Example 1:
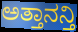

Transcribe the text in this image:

ಅತ್ತಾನನ್ತಿ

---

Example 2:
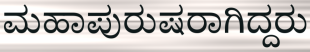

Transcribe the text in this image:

ಮಹಾಪುರುಷರಾಗಿದ್ದರು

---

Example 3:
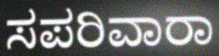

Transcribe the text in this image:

ಸಪರಿವಾರಾ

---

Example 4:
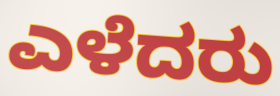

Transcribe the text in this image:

ಎಳೆದರು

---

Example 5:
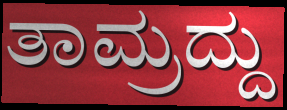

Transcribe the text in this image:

ತಾಮ್ರದ್ದು